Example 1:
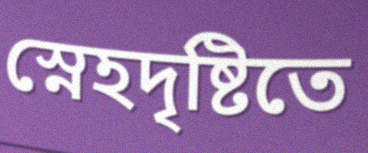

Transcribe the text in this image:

স্নেহদৃষ্টিতে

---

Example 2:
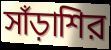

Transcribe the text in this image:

সাঁড়াশির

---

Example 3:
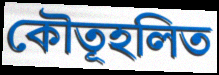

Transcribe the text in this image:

কৌতূহলিত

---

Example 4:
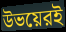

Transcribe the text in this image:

উভয়েরই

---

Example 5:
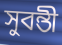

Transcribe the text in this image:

সুবন্তী